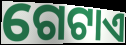
ଗେଟାଏ